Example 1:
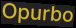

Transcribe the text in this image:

Opurbo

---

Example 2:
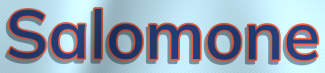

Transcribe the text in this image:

Salomone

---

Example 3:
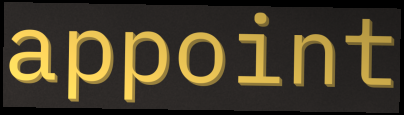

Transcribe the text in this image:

appoint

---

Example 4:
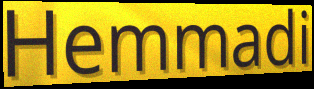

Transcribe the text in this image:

Hemmadi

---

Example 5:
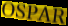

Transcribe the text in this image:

OSPAR